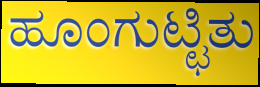
ಹೂಂಗುಟ್ಟಿತು